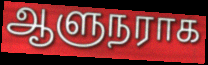
ஆளுநராக